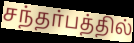
சந்தர்பத்தில்